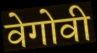
वेगोवी